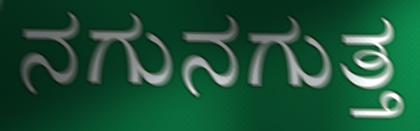
ನಗುನಗುತ್ತ